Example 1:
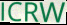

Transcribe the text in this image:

ICRW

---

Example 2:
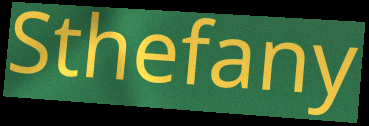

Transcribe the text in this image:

Sthefany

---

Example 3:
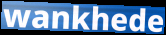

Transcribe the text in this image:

wankhede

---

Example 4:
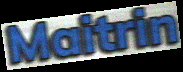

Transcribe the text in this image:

Maitrin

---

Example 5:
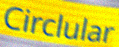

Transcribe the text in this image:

Circlular